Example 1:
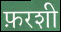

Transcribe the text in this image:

फ़रशी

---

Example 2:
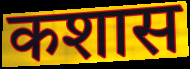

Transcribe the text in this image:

कशास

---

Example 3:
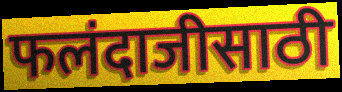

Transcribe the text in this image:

फलंदाजीसाठी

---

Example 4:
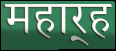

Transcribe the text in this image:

महार्ह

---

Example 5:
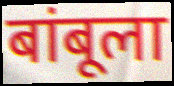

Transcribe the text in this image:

बांबूला